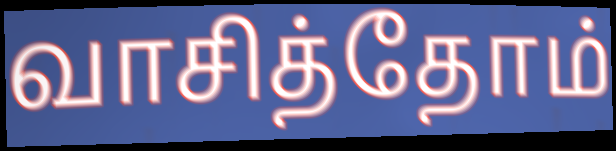
வாசித்தோம்